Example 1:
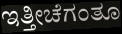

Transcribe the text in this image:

ಇತ್ತೀಚೆಗಂತೂ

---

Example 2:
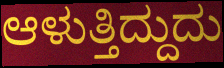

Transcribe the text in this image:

ಆಳುತ್ತಿದ್ದುದು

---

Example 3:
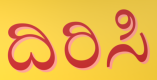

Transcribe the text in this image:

ದಿರಿಸಿ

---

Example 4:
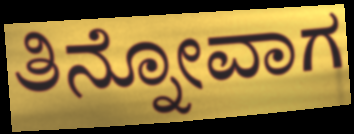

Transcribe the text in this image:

ತಿನ್ನೋವಾಗ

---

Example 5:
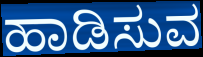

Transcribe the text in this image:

ಹಾಡಿಸುವ